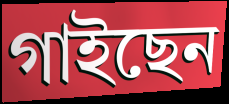
গাইছেন